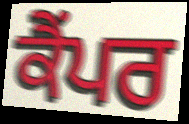
ਕੈਂਪਰ